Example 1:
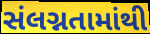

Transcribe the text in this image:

સંલગ્નતામાંથી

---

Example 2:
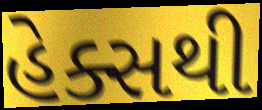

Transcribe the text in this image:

હેક્સથી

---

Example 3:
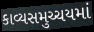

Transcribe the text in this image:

કાવ્યસમુચ્ચયમાં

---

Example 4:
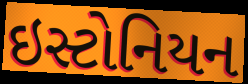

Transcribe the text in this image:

ઇસ્ટોનિયન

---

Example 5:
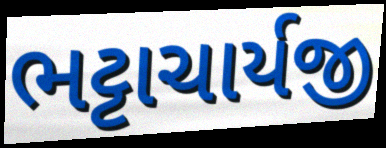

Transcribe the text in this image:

ભટ્ટાચાર્યજી